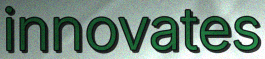
innovates